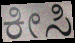
ಕೀಸಿ